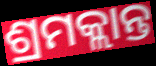
ଶ୍ରମକ୍ଲାନ୍ତ